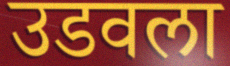
उडवला